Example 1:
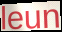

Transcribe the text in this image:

leun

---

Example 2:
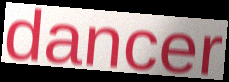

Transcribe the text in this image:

dancer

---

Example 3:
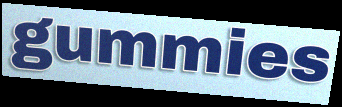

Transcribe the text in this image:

gummies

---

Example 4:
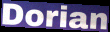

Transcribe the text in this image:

Dorian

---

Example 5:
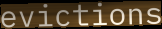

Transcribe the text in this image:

evictions